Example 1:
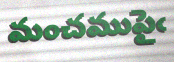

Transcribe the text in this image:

మంచముపైఁ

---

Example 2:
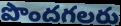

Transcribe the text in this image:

పొందగలరు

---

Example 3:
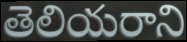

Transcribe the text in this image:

తెలియరాని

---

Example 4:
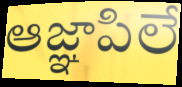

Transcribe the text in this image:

ఆజ్ఞాపిలే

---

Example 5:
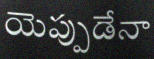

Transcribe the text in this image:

యెప్పుడేనా